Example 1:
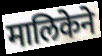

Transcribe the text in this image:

मालिकेने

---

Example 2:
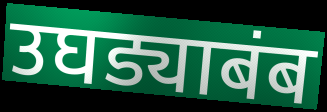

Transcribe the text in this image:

उघड्याबंब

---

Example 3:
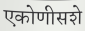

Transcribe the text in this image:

एकोणीसशे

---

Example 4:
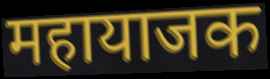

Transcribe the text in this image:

महायाजक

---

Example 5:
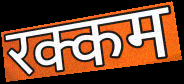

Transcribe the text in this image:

रक्कम